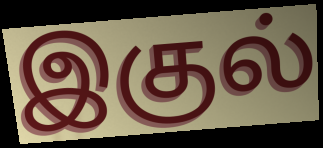
இகுல்